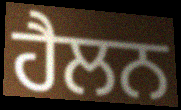
ਹੈਲਨ